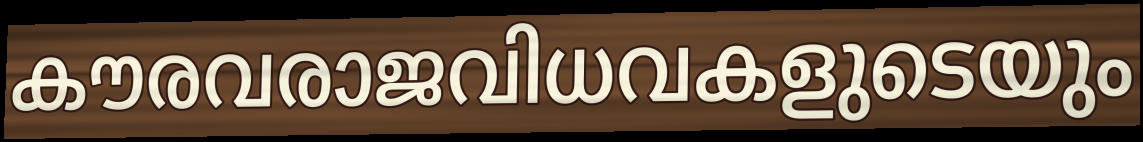
കൗരവരാജവിധവകളുടെയും